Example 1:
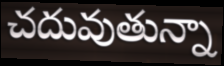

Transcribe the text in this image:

చదువుతున్నా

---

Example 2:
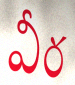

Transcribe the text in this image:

వీర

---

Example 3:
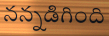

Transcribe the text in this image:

నన్నడిగింది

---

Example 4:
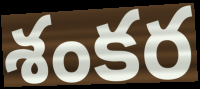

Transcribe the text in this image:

శంకర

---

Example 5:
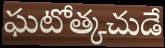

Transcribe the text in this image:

ఘటోత్కచుడే